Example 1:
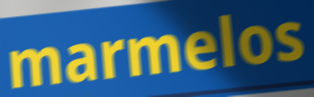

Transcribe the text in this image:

marmelos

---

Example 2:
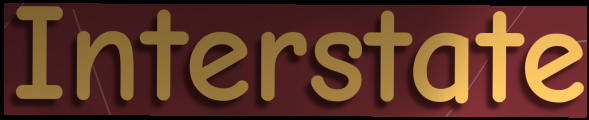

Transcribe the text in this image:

Interstate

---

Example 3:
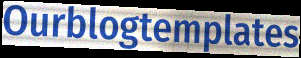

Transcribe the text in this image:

Ourblogtemplates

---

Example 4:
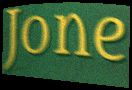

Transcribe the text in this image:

Jone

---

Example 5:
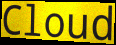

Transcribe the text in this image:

Cloud